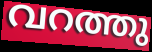
വറത്തു